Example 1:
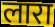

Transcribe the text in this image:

लारा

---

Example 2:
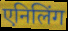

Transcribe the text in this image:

एनिलिंग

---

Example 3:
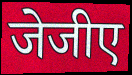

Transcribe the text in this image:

जेजीए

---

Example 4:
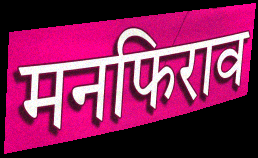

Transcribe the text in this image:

मनफिराव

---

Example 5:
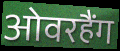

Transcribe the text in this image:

ओवरहैंग